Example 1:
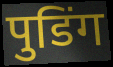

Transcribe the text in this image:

पुडिंग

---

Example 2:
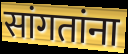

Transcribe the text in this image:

सांगतांना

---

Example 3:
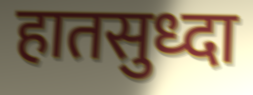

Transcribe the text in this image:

हातसुध्दा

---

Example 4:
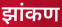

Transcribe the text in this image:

झांकण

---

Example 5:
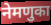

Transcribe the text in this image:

नेमणुका